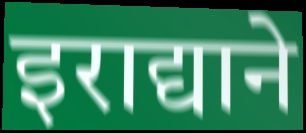
इराद्याने